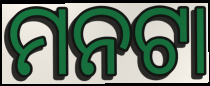
ମନଟା